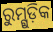
ରୁମ୍ଗୁଡ଼ିକ